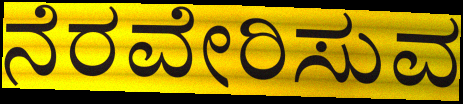
ನೆರವೇರಿಸುವ